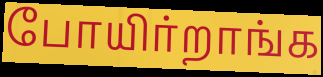
போயிர்றாங்க